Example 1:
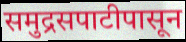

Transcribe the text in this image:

समुद्रसपाटीपासून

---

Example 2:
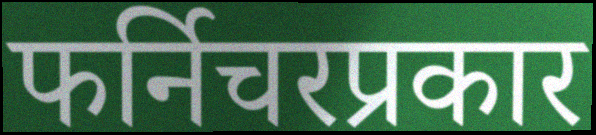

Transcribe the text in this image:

फर्निचरप्रकार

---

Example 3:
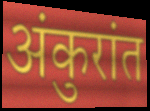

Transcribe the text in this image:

अंकुरांत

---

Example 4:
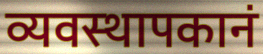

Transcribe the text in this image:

व्यवस्थापकानं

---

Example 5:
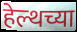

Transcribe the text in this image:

हेल्थच्या